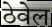
ठेवेल